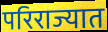
परिराज्यात